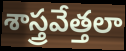
శాస్త్రవేత్తలా